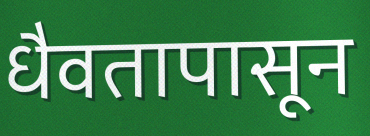
धैवतापासून